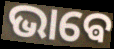
ଭାଵେ